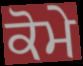
ਕੋਮੇ